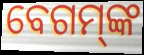
ବେଗମ୍‌ଙ୍କ